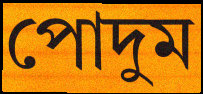
পোদুম